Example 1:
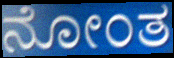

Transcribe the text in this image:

ನೋಂತ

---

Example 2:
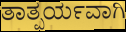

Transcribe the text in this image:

ತಾತ್ಪರ್ಯವಾಗಿ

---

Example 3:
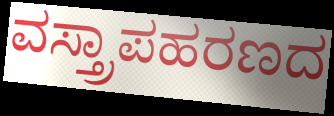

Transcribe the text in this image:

ವಸ್ತ್ರಾಪಹರಣದ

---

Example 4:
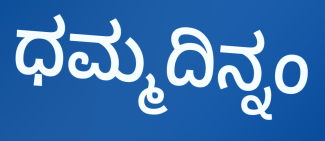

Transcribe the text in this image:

ಧಮ್ಮದಿನ್ನಂ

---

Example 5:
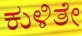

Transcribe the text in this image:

ಕುಳಿತೇ